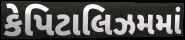
કેપિટાલિઝમમાં